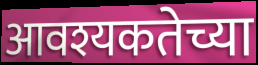
आवश्यकतेच्या